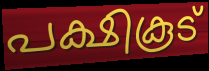
പക്ഷികൂട്